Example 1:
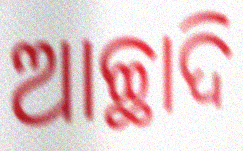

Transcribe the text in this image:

ଆଚ୍ଛାଦି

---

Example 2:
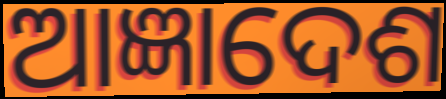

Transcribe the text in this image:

ଆଜ୍ଞାଦେଶ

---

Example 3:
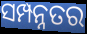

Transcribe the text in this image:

ସମ୍ପନ୍ନତର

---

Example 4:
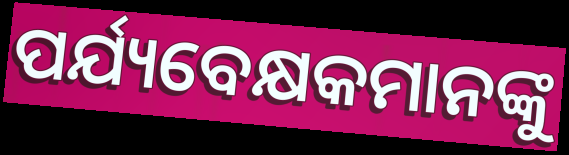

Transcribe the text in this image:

ପର୍ଯ୍ୟବେକ୍ଷକମାନଙ୍କୁ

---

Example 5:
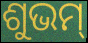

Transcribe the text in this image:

ଶୁଭମ୍